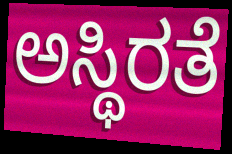
ಅಸ್ಥಿರತೆ